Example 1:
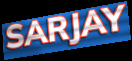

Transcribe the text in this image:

SARJAY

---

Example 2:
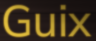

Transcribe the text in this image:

Guix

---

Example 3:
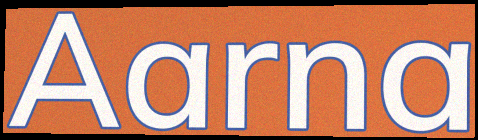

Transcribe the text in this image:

Aarna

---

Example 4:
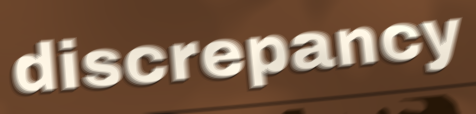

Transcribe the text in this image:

discrepancy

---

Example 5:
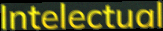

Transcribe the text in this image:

Intelectual